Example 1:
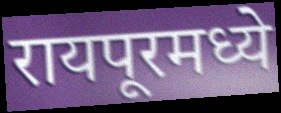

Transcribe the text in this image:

रायपूरमध्ये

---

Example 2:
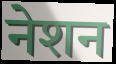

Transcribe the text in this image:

नेशन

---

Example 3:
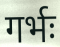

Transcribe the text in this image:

गर्भः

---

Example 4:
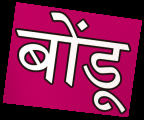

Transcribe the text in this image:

बोंडू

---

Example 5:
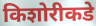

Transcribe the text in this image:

किशोरीकडे